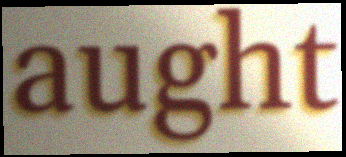
aught